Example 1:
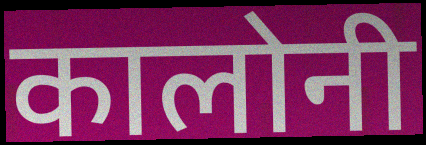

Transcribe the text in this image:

कालोनी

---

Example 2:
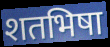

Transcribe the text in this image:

शतभिषा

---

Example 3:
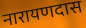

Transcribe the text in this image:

नारायणदास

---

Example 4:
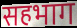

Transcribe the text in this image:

सहभाग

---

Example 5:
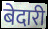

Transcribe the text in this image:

बेदारी